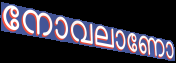
നോവലാണോ